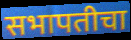
सभापतीचा